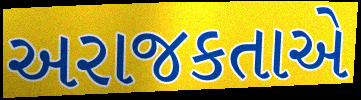
અરાજકતાએ